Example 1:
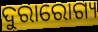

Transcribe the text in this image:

ଦୁରାରୋଗ୍ୟ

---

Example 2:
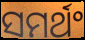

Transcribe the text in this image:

ସମର୍ଥଂ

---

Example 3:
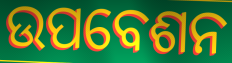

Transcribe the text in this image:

ଉପବେଶନ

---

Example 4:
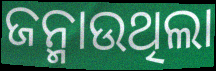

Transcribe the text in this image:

ଜନ୍ମାଉଥିଲା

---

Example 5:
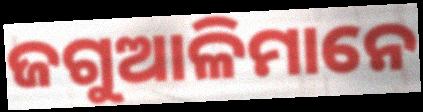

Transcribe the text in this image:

ଜଗୁଆଳିମାନେ